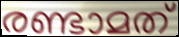
രണ്ടാമത്